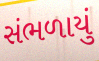
સંભળાયું